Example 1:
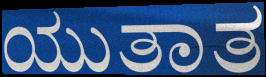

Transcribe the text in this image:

ಯುತಾತ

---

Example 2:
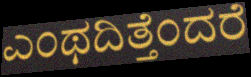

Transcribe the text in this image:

ಎಂಥದಿತ್ತೆಂದರೆ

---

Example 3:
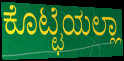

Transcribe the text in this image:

ಕೊಟ್ಟೆಯಲ್ಲಾ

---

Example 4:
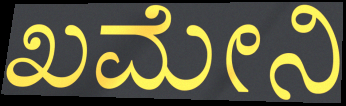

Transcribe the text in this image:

ಖಮೇನಿ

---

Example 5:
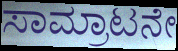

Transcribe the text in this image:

ಸಾಮ್ರಾಟನೇ